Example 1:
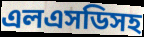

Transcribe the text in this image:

এলএসডিসহ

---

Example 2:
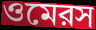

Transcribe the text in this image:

ওমেরস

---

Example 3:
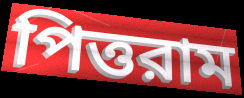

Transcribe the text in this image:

পিত্তরাম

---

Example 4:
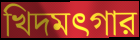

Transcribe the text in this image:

খিদমৎগার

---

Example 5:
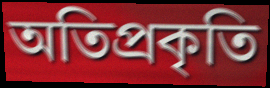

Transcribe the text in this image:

অতিপ্রকৃতি